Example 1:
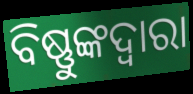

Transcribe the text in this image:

ବିଷ୍ଣୁଙ୍କଦ୍ୱାରା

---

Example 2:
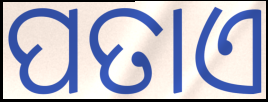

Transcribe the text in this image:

ପତାଏ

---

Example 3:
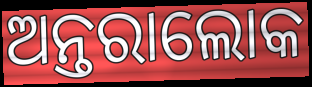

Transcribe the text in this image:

ଅନ୍ତରାଲୋକ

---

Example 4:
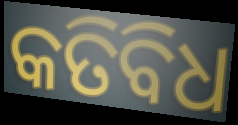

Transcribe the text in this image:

କତିବିଧ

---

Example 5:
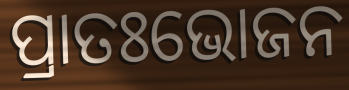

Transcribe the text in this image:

ପ୍ରାତଃଭୋଜନ